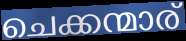
ചെക്കന്മാര്